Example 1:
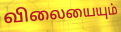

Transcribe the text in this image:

விலையையும்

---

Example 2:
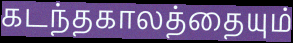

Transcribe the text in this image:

கடந்தகாலத்தையும்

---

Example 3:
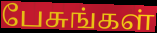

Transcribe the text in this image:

பேசுங்கள்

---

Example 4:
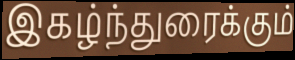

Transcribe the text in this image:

இகழ்ந்துரைக்கும்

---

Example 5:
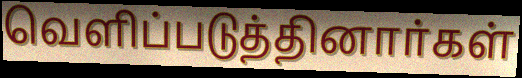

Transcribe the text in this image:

வெளிப்படுத்தினார்கள்